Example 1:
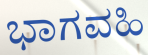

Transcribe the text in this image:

ಭಾಗವಹಿ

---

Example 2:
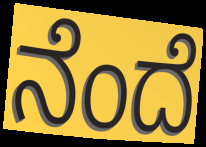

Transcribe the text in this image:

ನೆಂದೆ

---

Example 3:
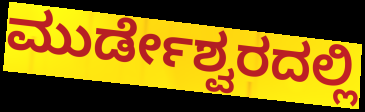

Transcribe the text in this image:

ಮುರ್ಡೇಶ್ವರದಲ್ಲಿ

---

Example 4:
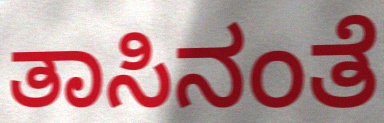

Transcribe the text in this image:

ತಾಸಿನಂತೆ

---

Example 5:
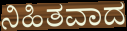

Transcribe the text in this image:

ನಿಹಿತವಾದ